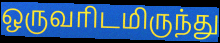
ஒருவரிடமிருந்து